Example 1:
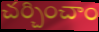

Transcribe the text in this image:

చర్చించాం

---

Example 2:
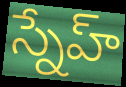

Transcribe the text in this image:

స్నేహ్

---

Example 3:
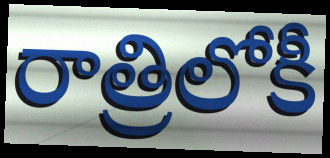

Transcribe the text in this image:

రాత్రిలోకీ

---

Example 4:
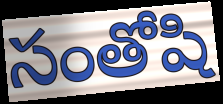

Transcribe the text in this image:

సంతోషి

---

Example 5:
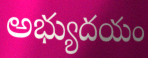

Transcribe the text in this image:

అభ్యుదయం